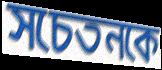
সচেতনকে